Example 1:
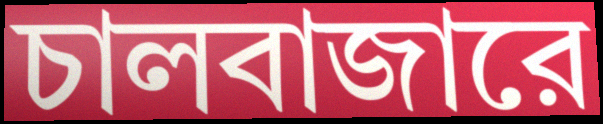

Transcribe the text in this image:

চালবাজারে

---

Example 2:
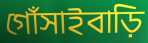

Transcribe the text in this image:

গোঁসাইবাড়ি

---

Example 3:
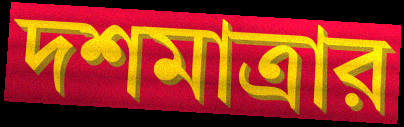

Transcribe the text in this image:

দশমাত্রার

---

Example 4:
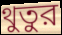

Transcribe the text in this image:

থুতুর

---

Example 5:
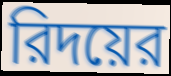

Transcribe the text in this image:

রিদয়ের